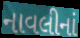
નાવલીનાં